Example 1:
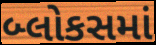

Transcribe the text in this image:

બ્લોકસમાં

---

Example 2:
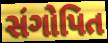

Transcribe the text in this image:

સંગોપિત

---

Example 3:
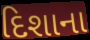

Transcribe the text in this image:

દિશાના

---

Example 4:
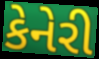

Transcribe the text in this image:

કેનેરી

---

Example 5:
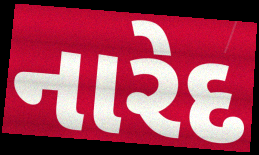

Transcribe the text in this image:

નારેદ